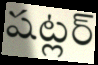
షట్లర్